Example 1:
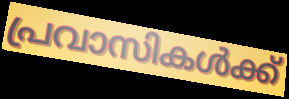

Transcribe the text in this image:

പ്രവാസികൾക്ക്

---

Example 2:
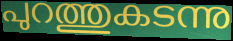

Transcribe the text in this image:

പുറത്തുകടന്നു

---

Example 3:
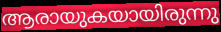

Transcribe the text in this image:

ആരായുകയായിരുന്നു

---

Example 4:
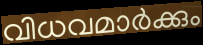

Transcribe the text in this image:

വിധവമാർക്കും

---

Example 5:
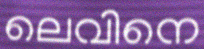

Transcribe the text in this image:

ലെവിനെ